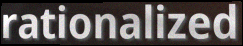
rationalized